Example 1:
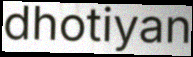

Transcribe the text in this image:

dhotiyan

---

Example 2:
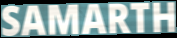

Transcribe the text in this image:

SAMARTH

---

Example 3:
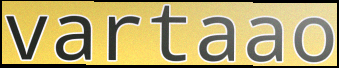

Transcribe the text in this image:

vartaao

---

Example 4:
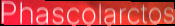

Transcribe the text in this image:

Phascolarctos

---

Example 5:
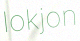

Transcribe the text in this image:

lokjon